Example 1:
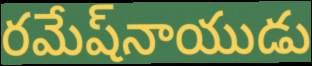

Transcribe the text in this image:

రమేష్‌నాయుడు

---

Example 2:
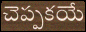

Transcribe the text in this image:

చెప్పకయే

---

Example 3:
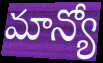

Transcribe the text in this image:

మాన్యో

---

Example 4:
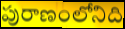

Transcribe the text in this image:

పురాణంలోనిది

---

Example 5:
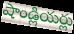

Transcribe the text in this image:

షాండ్లియర్లు